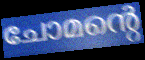
ചോമന്റെ